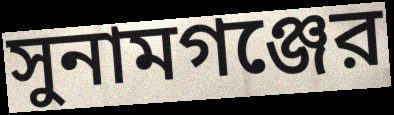
সুনামগঞ্জের